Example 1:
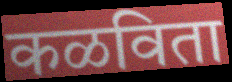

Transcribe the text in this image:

कळविता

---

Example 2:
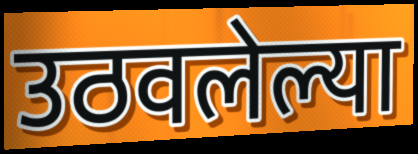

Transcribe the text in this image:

उठवलेल्या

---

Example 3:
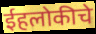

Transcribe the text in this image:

ईहलोकीचे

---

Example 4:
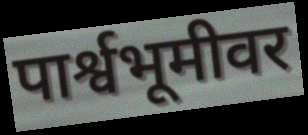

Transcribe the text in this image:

पार्श्वभूमीवर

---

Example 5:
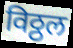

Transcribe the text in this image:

विठ्ठल